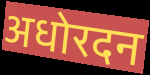
अधोरदन